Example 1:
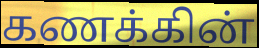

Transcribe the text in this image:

கணக்கின்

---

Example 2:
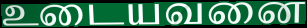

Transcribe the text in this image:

உடையவனை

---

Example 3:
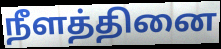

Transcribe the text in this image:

நீளத்தினை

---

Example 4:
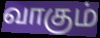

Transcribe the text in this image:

வாகும்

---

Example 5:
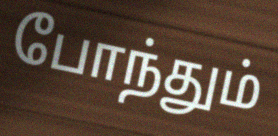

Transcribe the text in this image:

போந்தும்